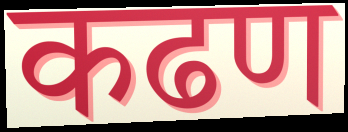
कढण